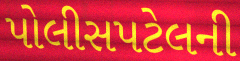
પોલીસપટેલની